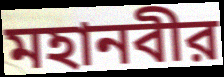
মহানবীর